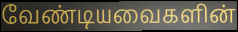
வேண்டியவைகளின்